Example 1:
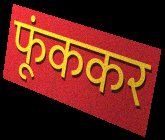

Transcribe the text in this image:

फूंककर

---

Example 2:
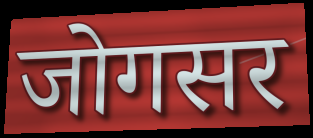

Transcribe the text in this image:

जोगसर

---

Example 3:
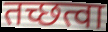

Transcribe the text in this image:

तच्छत्वा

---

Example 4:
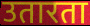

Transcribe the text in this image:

उतारता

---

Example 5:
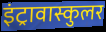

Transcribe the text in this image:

इंट्रावास्कुलर